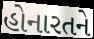
હોનારતને